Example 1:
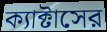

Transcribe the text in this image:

ক্যাক্টাসের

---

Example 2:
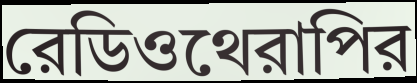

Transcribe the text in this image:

রেডিওথেরাপির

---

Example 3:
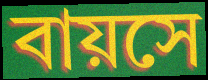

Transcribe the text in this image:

বায়সে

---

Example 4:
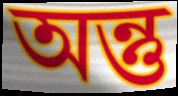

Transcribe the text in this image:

অন্তু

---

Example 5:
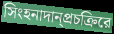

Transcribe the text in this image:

সিংহনাদান্প্রচক্রিরে